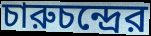
চারুচন্দ্রের